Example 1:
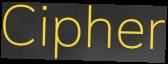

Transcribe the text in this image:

Cipher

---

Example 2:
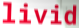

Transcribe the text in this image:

livid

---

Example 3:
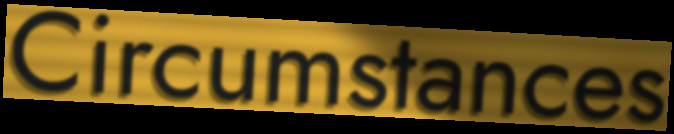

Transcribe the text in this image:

Circumstances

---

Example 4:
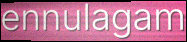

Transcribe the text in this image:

ennulagam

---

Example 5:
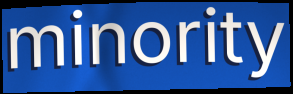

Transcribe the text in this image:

minority